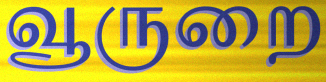
வூருறை